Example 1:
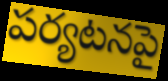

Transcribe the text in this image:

పర్యటనపై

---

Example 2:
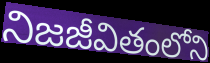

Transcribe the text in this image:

నిజజీవితంలోని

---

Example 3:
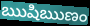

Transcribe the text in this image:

ఋషిఋణం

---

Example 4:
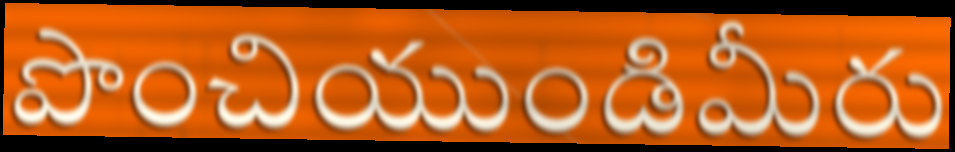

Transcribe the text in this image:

పొంచియుండిమీరు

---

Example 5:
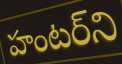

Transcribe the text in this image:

హంటర్‌ని